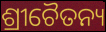
ଶ୍ରୀଚୈତନ୍ୟ